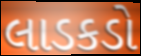
લાડકડો